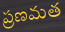
ప్రణమత